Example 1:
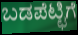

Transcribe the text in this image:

ಬಡಪೆಟ್ಟಿಗೆ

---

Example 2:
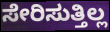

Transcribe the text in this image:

ಸೇರಿಸುತ್ತಿಲ್ಲ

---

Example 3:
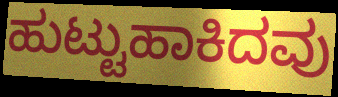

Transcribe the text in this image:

ಹುಟ್ಟುಹಾಕಿದವು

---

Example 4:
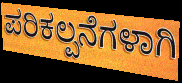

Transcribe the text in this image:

ಪರಿಕಲ್ಪನೆಗಳಾಗಿ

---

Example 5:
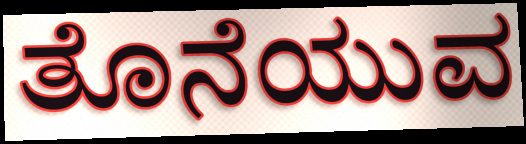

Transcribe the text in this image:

ತೊನೆಯುವ